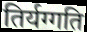
तिर्यग्गति